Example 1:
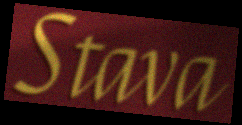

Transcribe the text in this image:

Stava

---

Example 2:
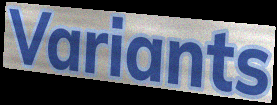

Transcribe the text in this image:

Variants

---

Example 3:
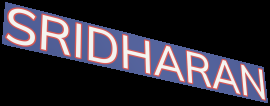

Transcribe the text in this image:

SRIDHARAN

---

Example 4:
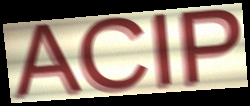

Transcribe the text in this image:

ACIP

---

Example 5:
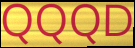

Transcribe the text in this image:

QQQD